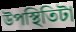
উপস্থিতিটা